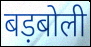
बड़बोली